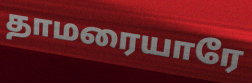
தாமரையாரே